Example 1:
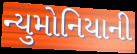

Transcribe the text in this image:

ન્યુમોનિયાની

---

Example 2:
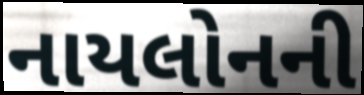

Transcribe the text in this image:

નાયલોનની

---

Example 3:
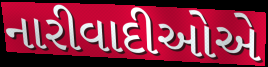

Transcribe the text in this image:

નારીવાદીઓએ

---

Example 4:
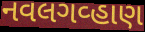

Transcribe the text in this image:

નવલગવ્હાણ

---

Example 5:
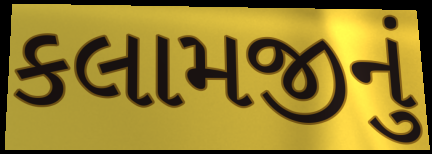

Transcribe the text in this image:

કલામજીનું